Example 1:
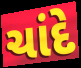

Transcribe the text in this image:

ચાંદે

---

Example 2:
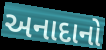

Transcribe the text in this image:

અનાદાનો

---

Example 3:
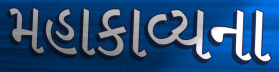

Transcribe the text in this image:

મહાકાવ્યના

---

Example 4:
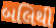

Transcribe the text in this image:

બલિથી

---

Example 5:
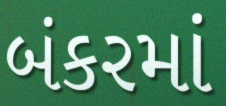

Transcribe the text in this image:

બંકરમાં